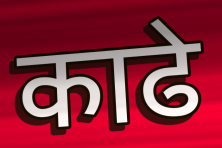
काढे